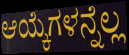
ಆಯ್ಕೆಗಳನ್ನೆಲ್ಲ